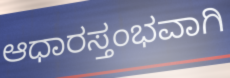
ಆಧಾರಸ್ತಂಭವಾಗಿ